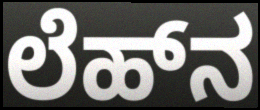
ಲೆಹ್‌ನ